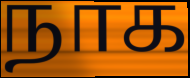
நாக